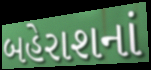
બહેરાશનાં